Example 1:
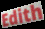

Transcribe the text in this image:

Edith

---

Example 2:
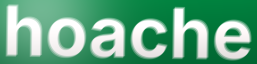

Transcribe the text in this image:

hoache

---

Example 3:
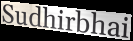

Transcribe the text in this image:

Sudhirbhai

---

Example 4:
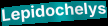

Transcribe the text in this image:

Lepidochelys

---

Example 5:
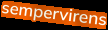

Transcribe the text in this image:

sempervirens